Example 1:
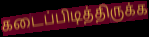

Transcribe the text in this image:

கடைப்பிடித்திருக்க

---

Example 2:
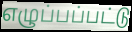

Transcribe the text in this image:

எழுப்பப்பட்டு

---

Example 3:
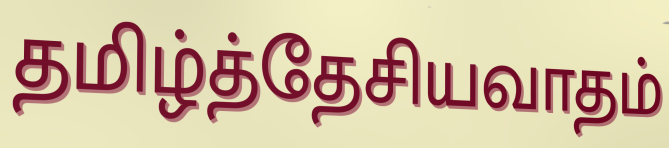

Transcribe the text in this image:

தமிழ்த்தேசியவாதம்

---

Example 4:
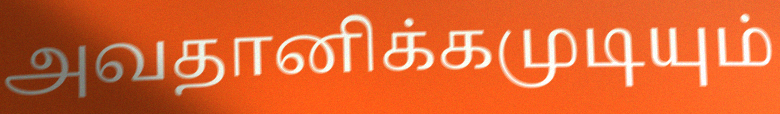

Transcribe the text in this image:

அவதானிக்கமுடியும்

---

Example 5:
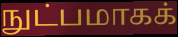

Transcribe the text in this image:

நுட்பமாகக்